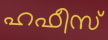
ഹഫീസ്